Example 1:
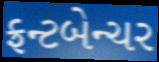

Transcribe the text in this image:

ફ્રન્ટબેન્ચર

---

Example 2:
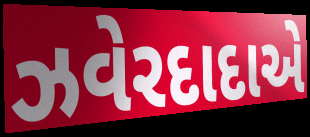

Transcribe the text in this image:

ઝવેરદાદાએ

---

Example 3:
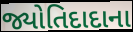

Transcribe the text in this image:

જ્યોતિદાદાના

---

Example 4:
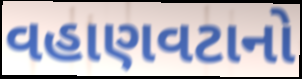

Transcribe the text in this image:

વહાણવટાનો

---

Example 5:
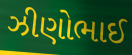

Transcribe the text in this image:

ઝીણોભાઈ